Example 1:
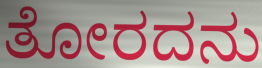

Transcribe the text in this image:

ತೋರದನು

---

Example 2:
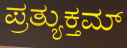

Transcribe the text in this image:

ಪ್ರತ್ಯುಕ್ತಮ್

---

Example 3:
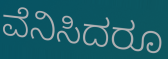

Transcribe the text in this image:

ವೆನಿಸಿದರೂ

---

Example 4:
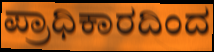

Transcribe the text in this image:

ಪ್ರಾಧಿಕಾರದಿಂದ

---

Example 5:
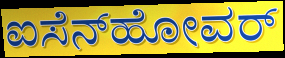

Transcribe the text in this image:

ಐಸೆನ್‍ಹೋವರ್